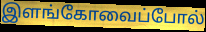
இளங்கோவைப்போல்